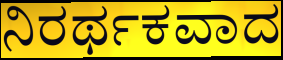
ನಿರರ್ಥಕವಾದ